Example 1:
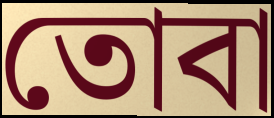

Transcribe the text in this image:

তোবা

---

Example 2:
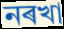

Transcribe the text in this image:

নৰখা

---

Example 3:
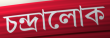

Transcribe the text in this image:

চন্দ্ৰালোক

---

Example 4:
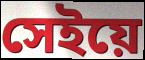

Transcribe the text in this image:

সেইয়ে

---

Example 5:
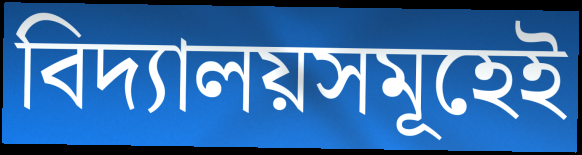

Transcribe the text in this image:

বিদ্যালয়সমূহেই